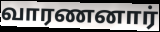
வாரணனார்